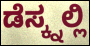
ಡೆಸ್ಕ್ನಲ್ಲಿ